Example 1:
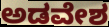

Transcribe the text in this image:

ಅಡವೇಶ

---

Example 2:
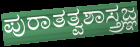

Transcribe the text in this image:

ಪುರಾತತ್ವಶಾಸ್ತ್ರಜ್ಞ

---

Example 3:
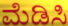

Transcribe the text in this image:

ಮೆಡಿಸಿ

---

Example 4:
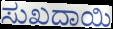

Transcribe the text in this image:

ಸುಖದಾಯಿ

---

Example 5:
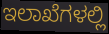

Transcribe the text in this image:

ಇಲಾಖೆಗಳಲ್ಲಿ